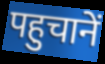
पहुचानें